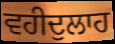
ਵਹੀਦੁਲਾਹ